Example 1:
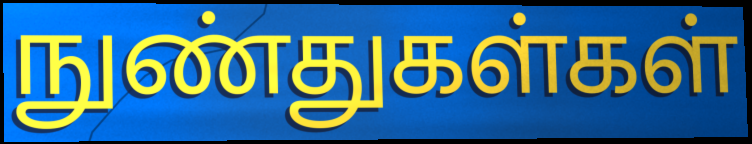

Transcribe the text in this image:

நுண்துகள்கள்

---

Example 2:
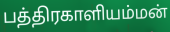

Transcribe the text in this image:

பத்திரகாளியம்மன்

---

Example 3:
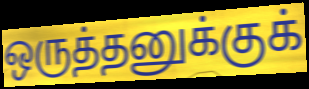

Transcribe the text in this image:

ஒருத்தனுக்குக்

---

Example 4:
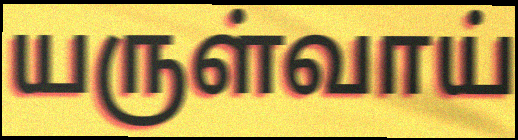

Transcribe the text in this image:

யருள்வாய்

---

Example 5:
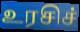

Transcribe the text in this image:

உரசிச்